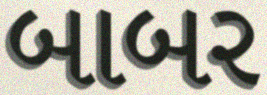
બાબર